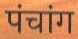
पंचांग